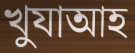
খুযাআহ